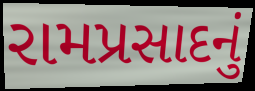
રામપ્રસાદનું